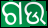
ଗଉ